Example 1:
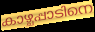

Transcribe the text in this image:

കാഴ്ചപ്പാടിനെ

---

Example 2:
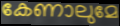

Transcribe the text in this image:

കേണാലുമേ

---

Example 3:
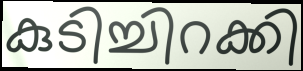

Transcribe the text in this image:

കുടിച്ചിറക്കി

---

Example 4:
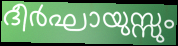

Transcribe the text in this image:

ദീർഘായുസ്സും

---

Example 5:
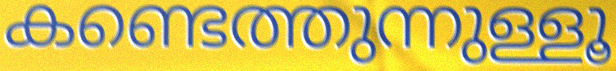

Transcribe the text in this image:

കണ്ടെത്തുന്നുള്ളൂ